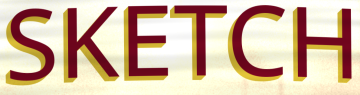
SKETCH